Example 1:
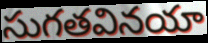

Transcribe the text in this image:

సుగతవినయా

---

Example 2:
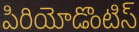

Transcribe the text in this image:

పిరియోడొంటిస్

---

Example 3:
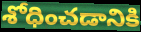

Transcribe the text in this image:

శోధించడానికి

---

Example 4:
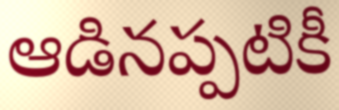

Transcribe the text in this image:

ఆడినప్పటికీ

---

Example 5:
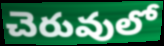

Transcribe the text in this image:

చెరువులో